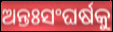
ଅନ୍ତଃସଂଘର୍ଷକୁ